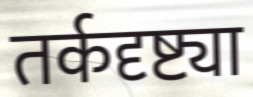
तर्कदृष्ट्या